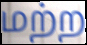
மற்ற